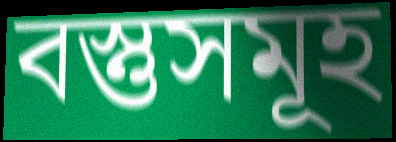
বস্তুসমূহ